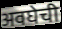
अवघेची